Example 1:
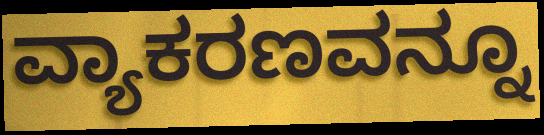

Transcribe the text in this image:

ವ್ಯಾಕರಣವನ್ನೂ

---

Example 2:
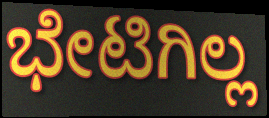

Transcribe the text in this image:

ಭೇಟಿಗಿಲ್ಲ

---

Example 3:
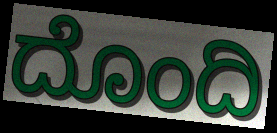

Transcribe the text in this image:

ದೊಂದಿ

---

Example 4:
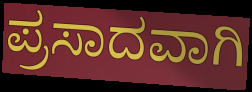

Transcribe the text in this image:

ಪ್ರಸಾದವಾಗಿ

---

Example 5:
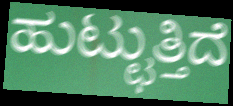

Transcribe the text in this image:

ಹುಟ್ಟುತ್ತಿದೆ